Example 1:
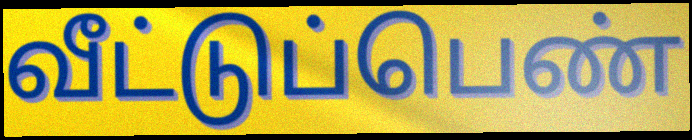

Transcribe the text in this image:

வீட்டுப்பெண்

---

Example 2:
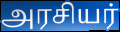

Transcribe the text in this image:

அரசியர்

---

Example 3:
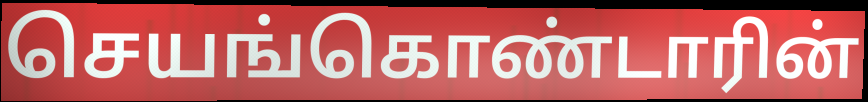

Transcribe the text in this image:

செயங்கொண்டாரின்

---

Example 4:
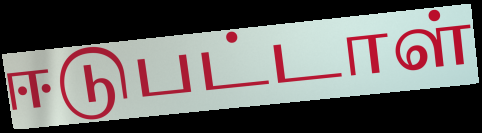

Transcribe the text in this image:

ஈடுபட்டாள்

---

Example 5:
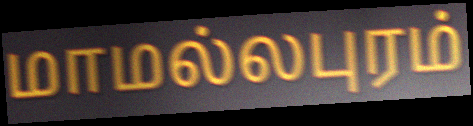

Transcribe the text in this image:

மாமல்லபுரம்